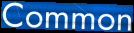
Common